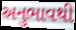
અનુભાવથી